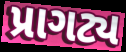
પ્રાગટ્ય